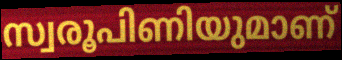
സ്വരൂപിണിയുമാണ്